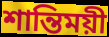
শান্তিময়ী